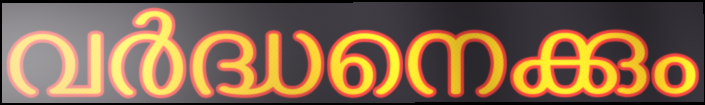
വർദ്ധനെക്കും